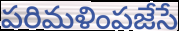
పరిమళింపజేసే